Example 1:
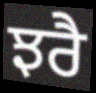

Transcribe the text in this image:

ਝਰੈ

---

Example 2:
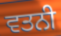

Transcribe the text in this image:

ਵਤਨੀ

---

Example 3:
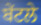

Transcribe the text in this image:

ਬੇਂਟਲੇ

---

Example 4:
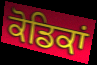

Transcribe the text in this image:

ਕੋਡਿਕਾਂ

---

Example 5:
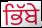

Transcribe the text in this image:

ਭਿੱਬੇ